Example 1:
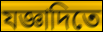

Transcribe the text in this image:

যজ্ঞাদিতে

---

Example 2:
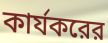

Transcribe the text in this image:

কার্যকরের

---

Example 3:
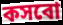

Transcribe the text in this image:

কসবো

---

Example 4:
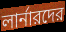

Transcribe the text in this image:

লার্নারদের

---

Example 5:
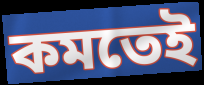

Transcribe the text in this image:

কমতেই